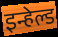
इन्हेल्ड